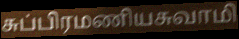
சுப்பிரமணியசுவாமி